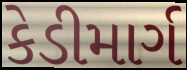
કેડીમાર્ગ